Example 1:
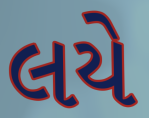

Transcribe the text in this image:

લયે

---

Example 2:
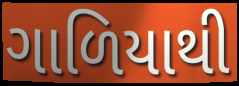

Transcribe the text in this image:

ગાળિયાથી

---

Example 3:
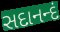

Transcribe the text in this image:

સદાનન્દં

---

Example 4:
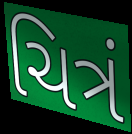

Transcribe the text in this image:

ચિત્રં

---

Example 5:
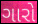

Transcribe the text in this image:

ગારો